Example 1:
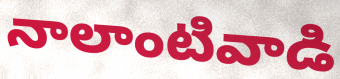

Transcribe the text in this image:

నాలాంటివాడి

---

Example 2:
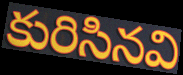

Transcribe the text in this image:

కురిసినవి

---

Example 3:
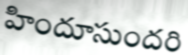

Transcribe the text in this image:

హిందూసుందరి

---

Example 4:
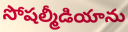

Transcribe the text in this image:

సోషల్మీడియాను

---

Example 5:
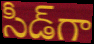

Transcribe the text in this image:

సీడ్‌గా